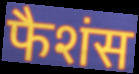
फैशंस